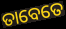
ତାବେତେ